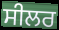
ਸੀਲਰ